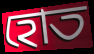
হোত